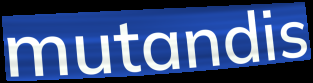
mutandis